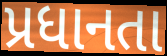
પ્રધાનતા